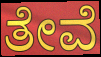
ತೇವೆ